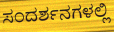
ಸಂದರ್ಶನಗಳಲ್ಲಿ